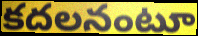
కదలనంటూ